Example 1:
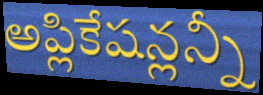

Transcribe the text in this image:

అప్లికేషన్లన్నీ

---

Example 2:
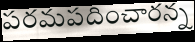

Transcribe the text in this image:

పరమపదించారన్న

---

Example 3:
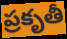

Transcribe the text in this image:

ప్రకృతీ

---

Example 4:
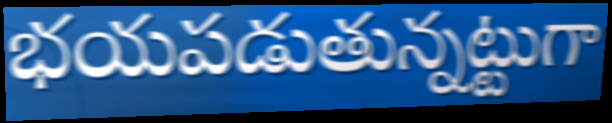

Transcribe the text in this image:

భయపడుతున్నట్టుగా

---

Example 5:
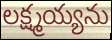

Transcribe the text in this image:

లక్ష్మయ్యను